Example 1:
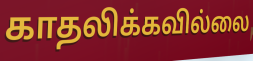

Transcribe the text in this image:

காதலிக்கவில்லை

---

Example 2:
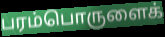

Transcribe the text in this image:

பரம்பொருளைக்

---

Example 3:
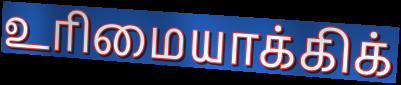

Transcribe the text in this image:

உரிமையாக்கிக்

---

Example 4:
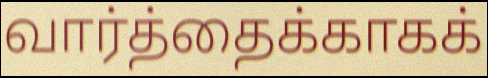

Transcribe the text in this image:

வார்த்தைக்காகக்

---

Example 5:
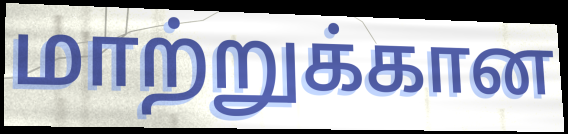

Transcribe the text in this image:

மாற்றுக்கான